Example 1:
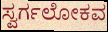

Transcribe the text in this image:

ಸ್ವರ್ಗಲೋಕವ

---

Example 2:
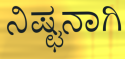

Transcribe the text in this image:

ನಿಷ್ಟನಾಗಿ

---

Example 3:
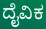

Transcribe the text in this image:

ದೈವಿಕ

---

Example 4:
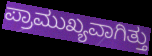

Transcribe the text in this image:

ಪ್ರಾಮುಖ್ಯವಾಗಿತ್ತು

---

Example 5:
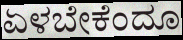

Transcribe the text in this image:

ಏಳಬೇಕೆಂದೂ